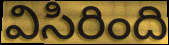
విసిరింది